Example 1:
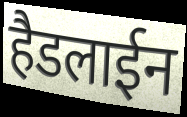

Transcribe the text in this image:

हैडलाईन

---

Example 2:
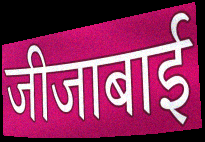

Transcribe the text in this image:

जीजाबाई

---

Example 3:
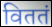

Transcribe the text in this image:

विततं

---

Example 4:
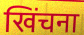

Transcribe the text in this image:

खिंचना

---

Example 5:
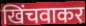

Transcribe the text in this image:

खिंचवाकर